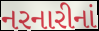
નરનારીનાં